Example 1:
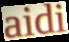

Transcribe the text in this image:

aidi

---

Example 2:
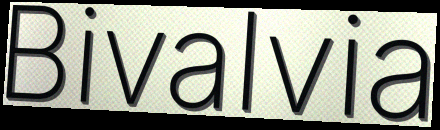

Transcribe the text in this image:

Bivalvia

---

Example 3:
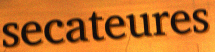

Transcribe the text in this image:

secateures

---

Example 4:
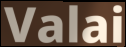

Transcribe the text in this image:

Valai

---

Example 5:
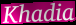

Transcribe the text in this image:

Khadia